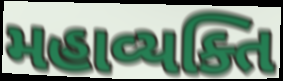
મહાવ્યક્તિ